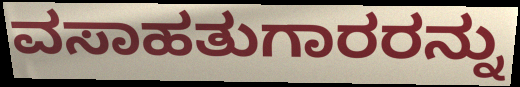
ವಸಾಹತುಗಾರರನ್ನು